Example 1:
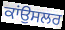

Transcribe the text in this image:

ਕਾਂਉਸਲਰ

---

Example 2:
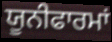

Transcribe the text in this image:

ਯੂਨੀਫਾਰਮਾਂ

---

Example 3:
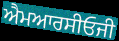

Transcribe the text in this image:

ਐਮਆਰਸੀਓਜੀ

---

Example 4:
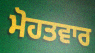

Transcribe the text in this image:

ਮੋਹਤਵਾਰ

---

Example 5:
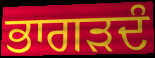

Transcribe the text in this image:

ਭਾਗੜਦੰ